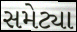
સમેટ્યા